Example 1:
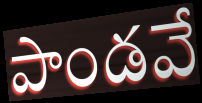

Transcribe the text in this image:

పాండవే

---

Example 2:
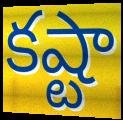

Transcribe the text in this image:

కష్టా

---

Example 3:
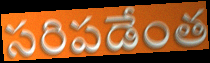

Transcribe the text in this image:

సరిపడేంత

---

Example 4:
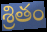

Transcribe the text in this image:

శ్రితం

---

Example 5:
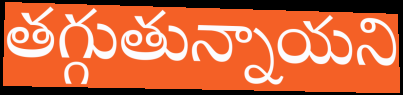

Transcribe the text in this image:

తగ్గుతున్నాయని